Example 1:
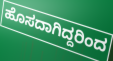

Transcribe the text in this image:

ಹೊಸದಾಗಿದ್ದರಿಂದ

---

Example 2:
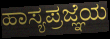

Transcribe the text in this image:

ಹಾಸ್ಯಪ್ರಜ್ಞೆಯ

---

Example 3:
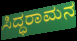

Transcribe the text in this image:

ಸಿದ್ಧರಾಮನ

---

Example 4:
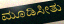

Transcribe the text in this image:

ಮೂಡಿಸೀತು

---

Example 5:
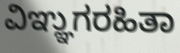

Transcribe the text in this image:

ವಿಞ್ಞುಗರಹಿತಾ